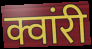
क्वांरी